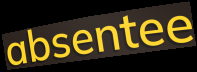
absentee